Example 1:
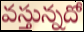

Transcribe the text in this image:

వస్తున్నదో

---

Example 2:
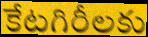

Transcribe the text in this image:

కేటగిరీలకు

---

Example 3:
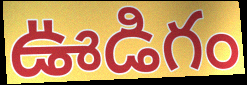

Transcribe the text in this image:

ఊడిగం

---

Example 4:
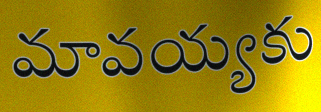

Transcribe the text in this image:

మావయ్యకు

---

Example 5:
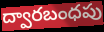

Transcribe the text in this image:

ద్వారబంధపు